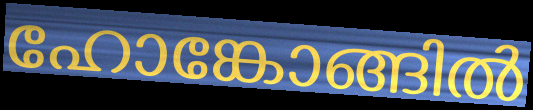
ഹോങ്കോങ്ങിൽ